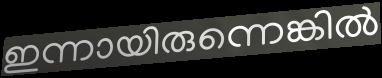
ഇന്നായിരുന്നെങ്കിൽ